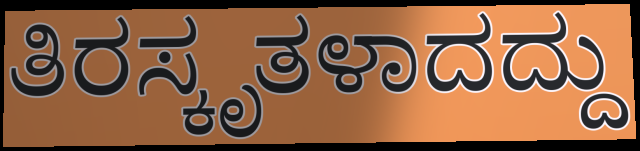
ತಿರಸ್ಕೃತಳಾದದ್ದು